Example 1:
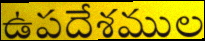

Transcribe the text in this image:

ఉపదేశముల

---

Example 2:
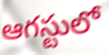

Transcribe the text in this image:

ఆగస్టులో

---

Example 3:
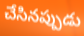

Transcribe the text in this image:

చేసినప్పుడు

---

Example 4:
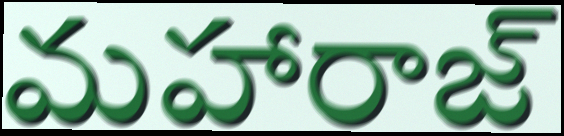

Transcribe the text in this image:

మహారాజ్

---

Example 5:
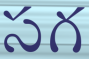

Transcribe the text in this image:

సగ